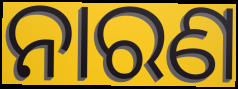
ନାରଣ